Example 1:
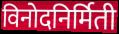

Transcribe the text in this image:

विनोदनिर्मिती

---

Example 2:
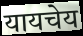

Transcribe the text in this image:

यायचेय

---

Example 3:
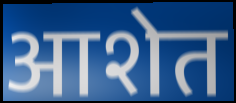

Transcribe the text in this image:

आशेत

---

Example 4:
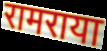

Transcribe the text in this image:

रामराया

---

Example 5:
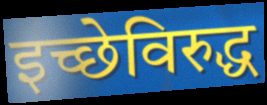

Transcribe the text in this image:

इच्छेविरुद्ध